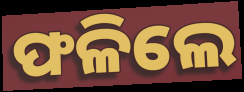
ଫଳିଲେ